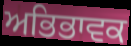
ਅਭਿਭਾਵਕ